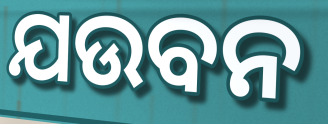
ଯଉବନ